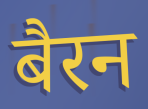
बैरन